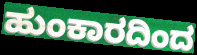
ಹುಂಕಾರದಿಂದ